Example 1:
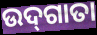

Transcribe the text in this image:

ଉଦ୍‌ଗାତା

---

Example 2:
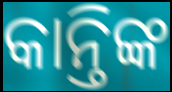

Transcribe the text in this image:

କାନ୍ତିଙ୍କ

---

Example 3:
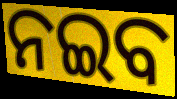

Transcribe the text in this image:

ନଇବ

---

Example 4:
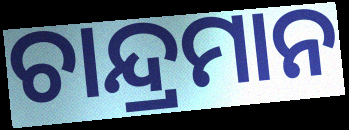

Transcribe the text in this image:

ଚାନ୍ଦ୍ରମାନ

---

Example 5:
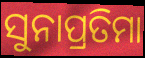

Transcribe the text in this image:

ସୁନାପ୍ରତିମା